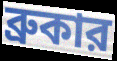
ব্রুকার